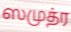
ஸமுத்ர